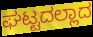
ಘಟ್ಟದಲ್ಲಾದ